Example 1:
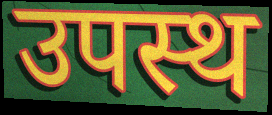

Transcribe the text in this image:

उपस्थ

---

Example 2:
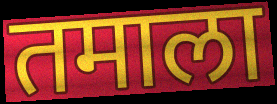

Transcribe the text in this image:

तमाला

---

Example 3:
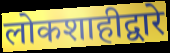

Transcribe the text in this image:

लोकशाहीद्वारे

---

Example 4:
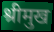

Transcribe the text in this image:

श्रीमुख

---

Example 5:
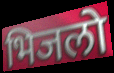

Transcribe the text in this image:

भिजलो